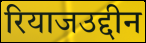
रियाजउद्दीन